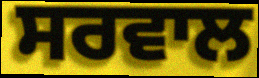
ਸਰਵਾਲ